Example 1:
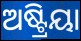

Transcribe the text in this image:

ଅଷ୍ଟ୍ରିୟା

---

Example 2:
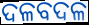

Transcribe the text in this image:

ଦଳବଦଳ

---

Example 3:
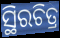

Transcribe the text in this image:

ସ୍ଥିରଚିତ୍ର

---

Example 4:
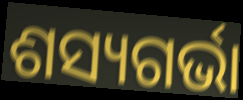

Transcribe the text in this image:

ଶସ୍ୟଗର୍ଭା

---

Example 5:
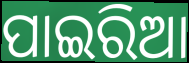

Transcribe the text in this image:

ପାଇରିଆ